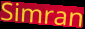
Simran